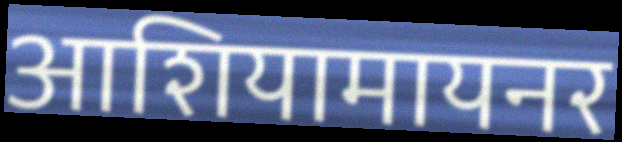
आशियामायनर